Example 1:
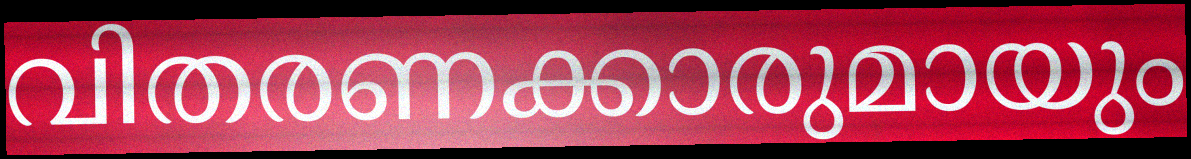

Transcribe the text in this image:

വിതരണക്കാരുമായും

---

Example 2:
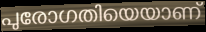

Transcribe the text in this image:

പുരോഗതിയെയാണ്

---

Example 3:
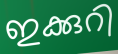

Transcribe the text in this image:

ഇക്കുറി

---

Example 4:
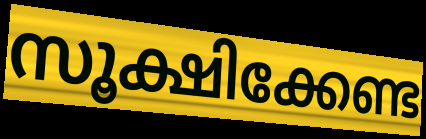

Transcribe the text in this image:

സൂക്ഷിക്കേണ്ട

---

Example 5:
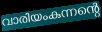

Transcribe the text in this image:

വാരിയംകുന്നന്റെ